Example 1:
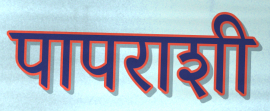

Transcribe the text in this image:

पापराशी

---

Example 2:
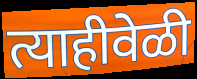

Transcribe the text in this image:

त्याहीवेळी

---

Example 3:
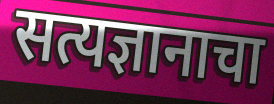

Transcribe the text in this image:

सत्यज्ञानाचा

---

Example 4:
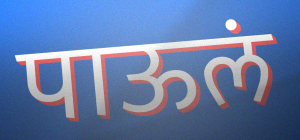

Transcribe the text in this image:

पाऊलं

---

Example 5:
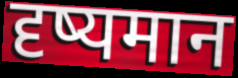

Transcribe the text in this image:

दृष्यमान